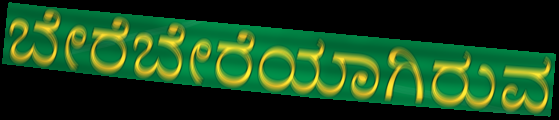
ಬೇರೆಬೇರೆಯಾಗಿರುವ